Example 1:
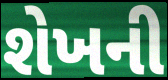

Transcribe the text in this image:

શેખની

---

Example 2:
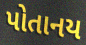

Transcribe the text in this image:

પોતાનય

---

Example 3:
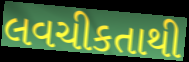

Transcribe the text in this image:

લવચીકતાથી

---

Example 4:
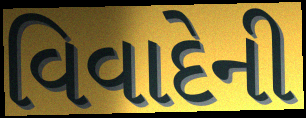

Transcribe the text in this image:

વિવાદેની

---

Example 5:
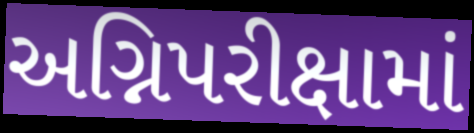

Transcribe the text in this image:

અગ્નિપરીક્ષામાં